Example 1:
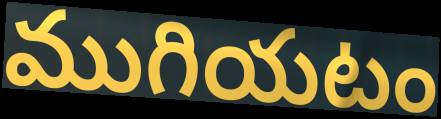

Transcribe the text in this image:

ముగియటం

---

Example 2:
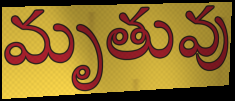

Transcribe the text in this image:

మృతువు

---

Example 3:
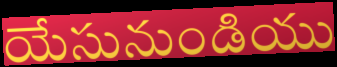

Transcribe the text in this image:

యేసునుండియు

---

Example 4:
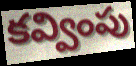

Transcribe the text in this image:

కవ్వింపు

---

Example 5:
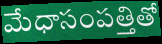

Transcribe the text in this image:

మేధాసంపత్తితో